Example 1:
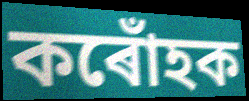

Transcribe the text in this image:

কৰোঁহক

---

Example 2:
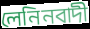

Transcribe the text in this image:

লেনিনবাদী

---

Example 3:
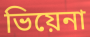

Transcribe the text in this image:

ভিয়েনা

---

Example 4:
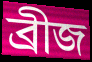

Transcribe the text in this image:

ব্ৰীজ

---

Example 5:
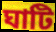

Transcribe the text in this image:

ঘাটি